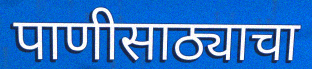
पाणीसाठ्याचा